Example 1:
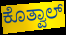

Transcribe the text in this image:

ಕೊತ್ವಾಲ್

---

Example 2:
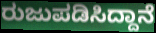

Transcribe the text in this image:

ರುಜುಪಡಿಸಿದ್ದಾನೆ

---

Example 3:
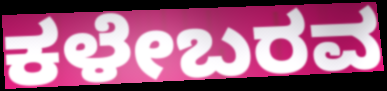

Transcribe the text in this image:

ಕಳೇಬರವ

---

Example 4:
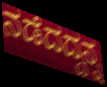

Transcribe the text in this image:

ನಡೆದದ್ದನ್ನ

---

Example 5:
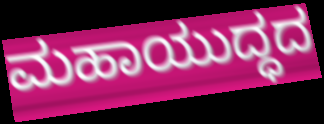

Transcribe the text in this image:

ಮಹಾಯುದ್ಧದ